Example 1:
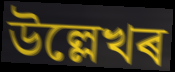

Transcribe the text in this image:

উল্লেখৰ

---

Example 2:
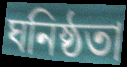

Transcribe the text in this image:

ঘনিষ্ঠতা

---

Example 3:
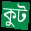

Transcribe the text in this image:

কুট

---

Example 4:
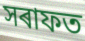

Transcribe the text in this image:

সৰাফত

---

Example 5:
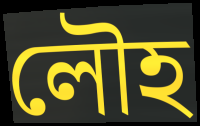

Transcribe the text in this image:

লৌহ